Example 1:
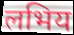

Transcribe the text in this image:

लभिय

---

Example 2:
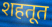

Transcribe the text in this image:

शहतूत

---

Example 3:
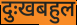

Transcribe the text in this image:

दुःखबहुल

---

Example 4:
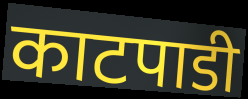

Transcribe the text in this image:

काटपाडी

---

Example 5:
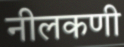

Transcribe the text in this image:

नीलकणी